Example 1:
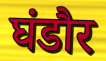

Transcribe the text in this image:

घंडौर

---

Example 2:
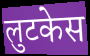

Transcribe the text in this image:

लुटकेस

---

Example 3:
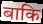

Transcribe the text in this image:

बाकि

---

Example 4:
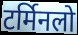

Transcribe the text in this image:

टर्मिनलो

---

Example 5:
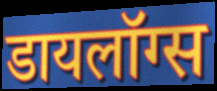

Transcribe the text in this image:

डायलॉग्स